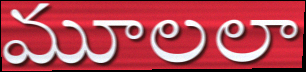
మూలలా